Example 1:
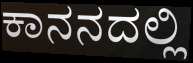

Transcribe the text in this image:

ಕಾನನದಲ್ಲಿ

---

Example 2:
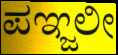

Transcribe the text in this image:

ಪಞ್ಜಲೀ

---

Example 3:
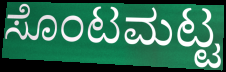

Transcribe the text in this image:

ಸೊಂಟಮಟ್ಟ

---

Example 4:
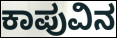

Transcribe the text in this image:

ಕಾಪುವಿನ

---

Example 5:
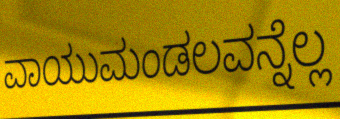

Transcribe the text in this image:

ವಾಯುಮಂಡಲವನ್ನೆಲ್ಲ